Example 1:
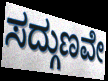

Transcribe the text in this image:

ಸದ್ಗುಣವೇ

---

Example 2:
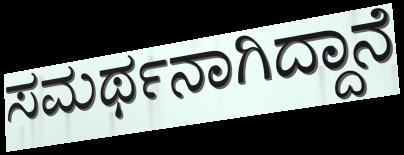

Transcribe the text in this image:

ಸಮರ್ಥನಾಗಿದ್ದಾನೆ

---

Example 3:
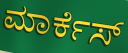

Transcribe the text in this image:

ಮಾರ್ಕೆಸ್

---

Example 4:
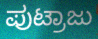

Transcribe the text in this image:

ಪುಟ್ರಾಜು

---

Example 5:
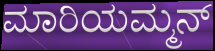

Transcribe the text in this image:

ಮಾರಿಯಮ್ಮನ್